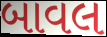
બાવલ